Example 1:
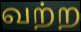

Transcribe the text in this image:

வற்ற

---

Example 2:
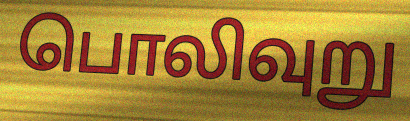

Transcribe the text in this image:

பொலிவுறு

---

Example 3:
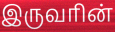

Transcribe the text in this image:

இருவரின்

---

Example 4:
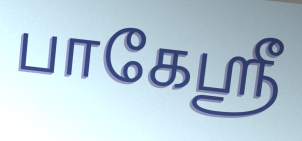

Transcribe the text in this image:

பாகேஸ்ரீ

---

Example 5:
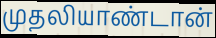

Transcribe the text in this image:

முதலியாண்டான்